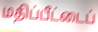
மதிப்பீட்டைப்